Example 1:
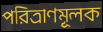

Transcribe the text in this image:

পরিত্রাণমূলক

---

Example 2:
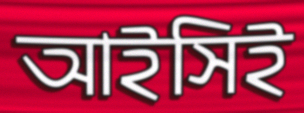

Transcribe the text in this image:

আইসিই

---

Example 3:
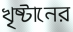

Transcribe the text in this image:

খৃষ্টানের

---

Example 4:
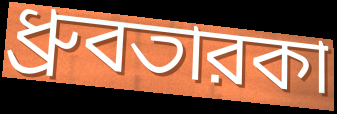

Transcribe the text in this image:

ধ্রুবতারকা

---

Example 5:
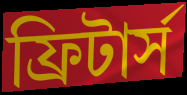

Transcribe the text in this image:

ফ্রিটার্স